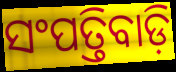
ସଂପତ୍ତିବାଡ଼ି